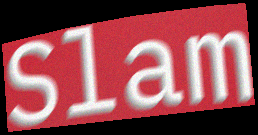
Slam